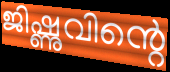
ജിഷ്ണുവിന്റെ